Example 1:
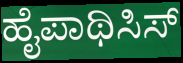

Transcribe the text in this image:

ಹೈಪಾಥಿಸಿಸ್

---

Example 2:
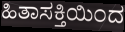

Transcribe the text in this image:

ಹಿತಾಸಕ್ತಿಯಿಂದ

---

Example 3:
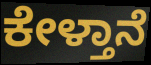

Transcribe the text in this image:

ಕೇಳ್ತಾನೆ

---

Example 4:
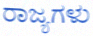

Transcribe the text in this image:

ರಾಜ್ಯಗಳು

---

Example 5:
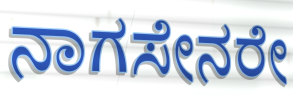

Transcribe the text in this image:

ನಾಗಸೇನರೇ